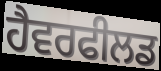
ਹੈਵਰਫੀਲਡ